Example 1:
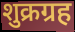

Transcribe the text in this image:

शुक्रग्रह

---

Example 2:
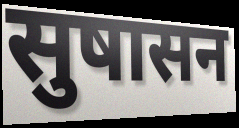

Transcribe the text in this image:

सुषासन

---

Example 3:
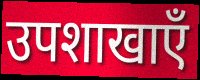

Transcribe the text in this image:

उपशाखाएँ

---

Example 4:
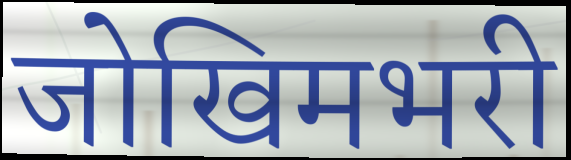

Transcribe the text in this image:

जोखिमभरी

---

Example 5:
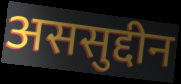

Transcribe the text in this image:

अससुद्दीन